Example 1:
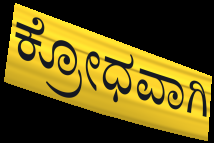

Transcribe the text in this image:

ಕ್ರೋಧವಾಗಿ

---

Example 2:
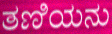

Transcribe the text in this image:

ತಣಿಯನು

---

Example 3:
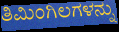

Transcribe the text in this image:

ತಿಮಿಂಗಿಲಗಳನ್ನು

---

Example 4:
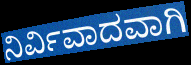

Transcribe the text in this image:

ನಿರ್ವಿವಾದವಾಗಿ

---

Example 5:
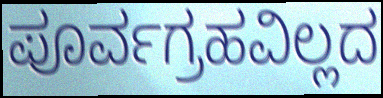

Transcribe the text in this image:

ಪೂರ್ವಗ್ರಹವಿಲ್ಲದ